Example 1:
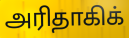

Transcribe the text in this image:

அரிதாகிக்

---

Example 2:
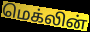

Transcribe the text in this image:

மெக்லின்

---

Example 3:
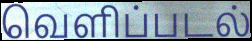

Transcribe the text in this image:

வெளிப்படல்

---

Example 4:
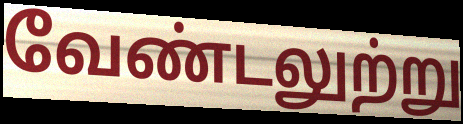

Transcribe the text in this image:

வேண்டலுற்று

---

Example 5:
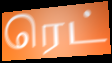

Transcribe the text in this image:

ரெட்